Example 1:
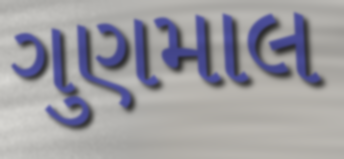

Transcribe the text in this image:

ગુણમાલ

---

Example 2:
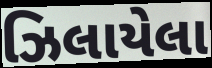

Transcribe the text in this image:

ઝિલાયેલા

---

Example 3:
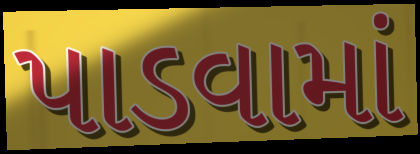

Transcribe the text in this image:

પાડવામાં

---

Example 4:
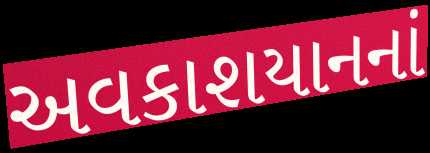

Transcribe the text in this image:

અવકાશયાનનાં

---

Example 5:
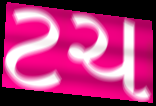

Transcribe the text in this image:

ટચ